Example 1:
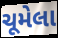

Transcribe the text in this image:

ચૂમેલા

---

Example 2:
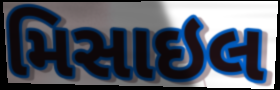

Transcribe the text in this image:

મિસાઇલ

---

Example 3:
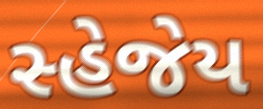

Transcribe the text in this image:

સ્હેજેય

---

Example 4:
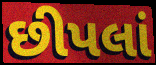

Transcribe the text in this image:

છીપલાં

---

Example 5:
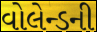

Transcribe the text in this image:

વોલેન્ડની